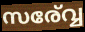
സര്വ്വേ